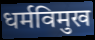
धर्मविमुख